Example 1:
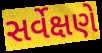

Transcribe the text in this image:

સર્વેક્ષણે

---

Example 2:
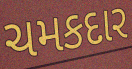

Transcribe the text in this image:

ચમકદાર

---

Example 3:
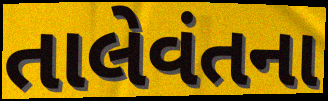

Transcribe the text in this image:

તાલેવંતના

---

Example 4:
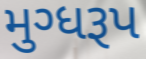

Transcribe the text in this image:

મુગ્ધરૂપ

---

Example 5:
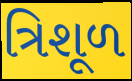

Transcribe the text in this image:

ત્રિશૂળ